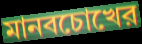
মানবচোখের